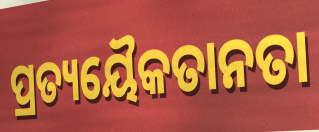
ପ୍ରତ୍ୟୟୈକତାନତା